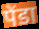
पेंडा